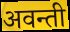
अवन्ती